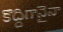
కొద్దిగానైనా